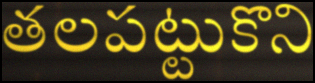
తలపట్టుకొని